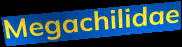
Megachilidae